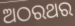
ଅଠରଥର